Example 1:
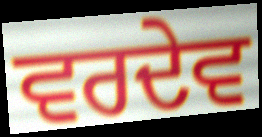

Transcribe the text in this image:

ਵਰਦੇਵ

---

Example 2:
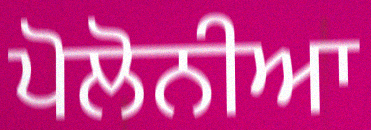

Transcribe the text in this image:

ਪੋਲੋਨੀਆ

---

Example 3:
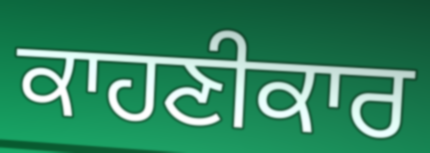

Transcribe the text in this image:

ਕਾਹਣੀਕਾਰ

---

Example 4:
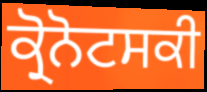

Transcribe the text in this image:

ਕ੍ਰੋਨੋਟਸਕੀ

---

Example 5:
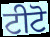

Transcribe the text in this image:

ਟੀਟੋ